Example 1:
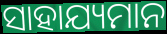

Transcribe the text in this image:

ସାହାଯ୍ୟମାନ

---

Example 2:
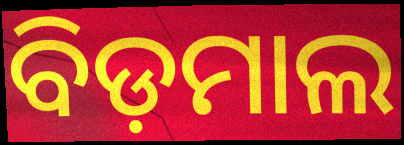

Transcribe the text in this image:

ବିଡ଼ମାଲ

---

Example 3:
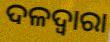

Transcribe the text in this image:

ଦଳଦ୍ୱାରା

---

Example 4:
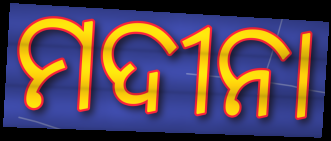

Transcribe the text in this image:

ମଦୀନା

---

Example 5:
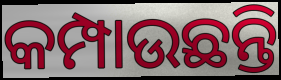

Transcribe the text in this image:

କମ୍ପାଉଛନ୍ତି